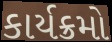
કાર્યક્રમો